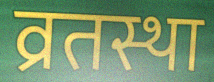
व्रतस्था